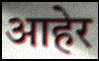
आहेर